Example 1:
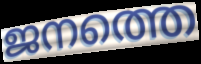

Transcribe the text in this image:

ജനത്തെ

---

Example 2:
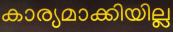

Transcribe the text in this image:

കാര്യമാക്കിയില്ല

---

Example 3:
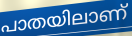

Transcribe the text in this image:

പാതയിലാണ്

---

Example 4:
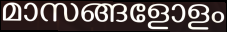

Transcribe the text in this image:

മാസങ്ങളോളം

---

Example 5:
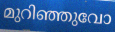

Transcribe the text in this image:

മുറിഞ്ഞുവോ